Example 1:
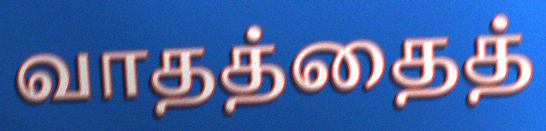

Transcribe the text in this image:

வாதத்தைத்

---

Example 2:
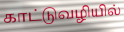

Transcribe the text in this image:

காட்டுவழியில்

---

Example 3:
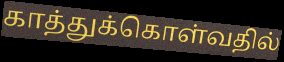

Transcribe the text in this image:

காத்துக்கொள்வதில்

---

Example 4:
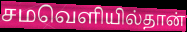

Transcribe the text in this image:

சமவெளியில்தான்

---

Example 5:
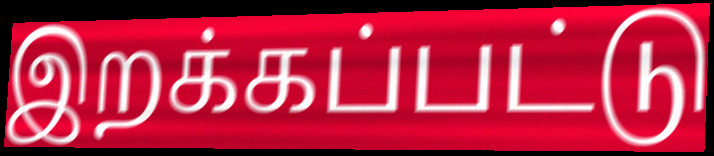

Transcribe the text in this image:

இறக்கப்பட்டு